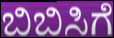
ಬಿಬಿಸಿಗೆ